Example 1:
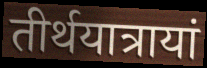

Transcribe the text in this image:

तीर्थयात्रायां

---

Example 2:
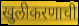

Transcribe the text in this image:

खुलीकरणाची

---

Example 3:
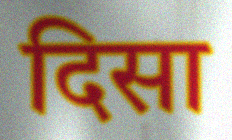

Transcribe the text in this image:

दिसा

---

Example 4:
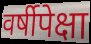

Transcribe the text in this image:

वर्षीपेक्षा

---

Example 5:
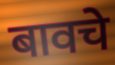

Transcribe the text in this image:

बावचे